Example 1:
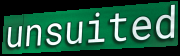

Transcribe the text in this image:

unsuited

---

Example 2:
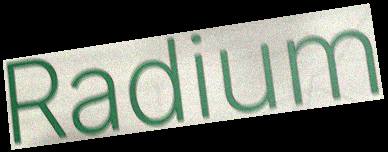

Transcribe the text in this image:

Radium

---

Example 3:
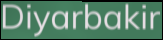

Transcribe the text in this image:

Diyarbakir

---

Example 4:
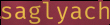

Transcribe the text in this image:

saglyach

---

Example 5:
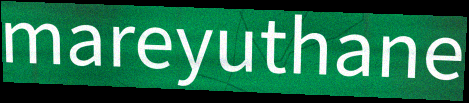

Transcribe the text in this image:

mareyuthane